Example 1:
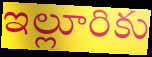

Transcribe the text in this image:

ఇల్లూరికు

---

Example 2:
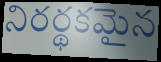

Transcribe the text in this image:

నిరర్థకమైన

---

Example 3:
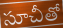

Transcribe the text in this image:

సూచీతో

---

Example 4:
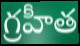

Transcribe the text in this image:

గ్రహీత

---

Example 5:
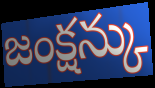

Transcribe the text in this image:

జంక్షన్కు